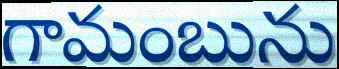
గామంబును